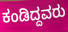
ಕಂಡಿದ್ದವರು